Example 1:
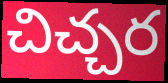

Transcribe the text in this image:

చిచ్చర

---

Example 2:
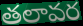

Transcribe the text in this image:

తలావర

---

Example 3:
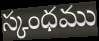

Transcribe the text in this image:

స్కంధము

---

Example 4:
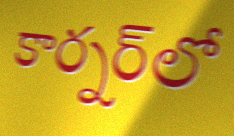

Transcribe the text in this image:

కార్నర్‌లో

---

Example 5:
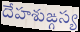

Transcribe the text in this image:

దేహశుఙ్గస్య